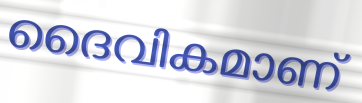
ദൈവികമാണ്